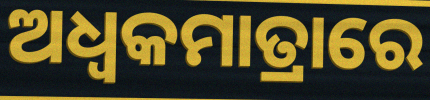
ଅଧ୍ଵକମାତ୍ରାରେ